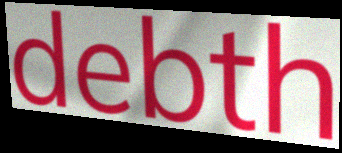
debth